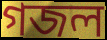
গজল